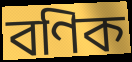
বণিক